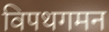
विपथगमन